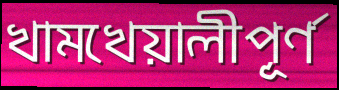
খামখেয়ালীপূর্ণ